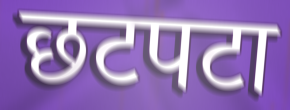
छटपटा